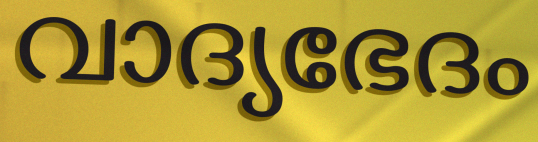
വാദ്യഭേദം